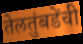
तेलतुंबडेंची